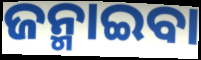
ଜନ୍ମାଇବା